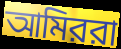
আমিররা